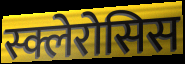
स्क्लेरोसिस